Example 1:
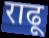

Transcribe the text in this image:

राढू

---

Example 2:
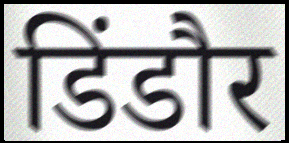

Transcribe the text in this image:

डिंडौर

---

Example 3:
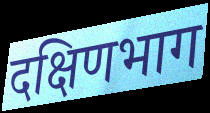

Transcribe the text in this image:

दक्षिणभाग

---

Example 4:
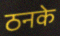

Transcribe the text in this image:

ठनके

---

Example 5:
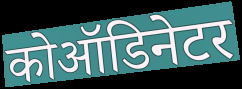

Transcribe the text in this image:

कोऑडिनेटर